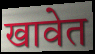
खावेत